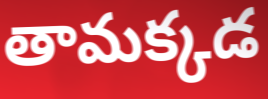
తామక్కడ